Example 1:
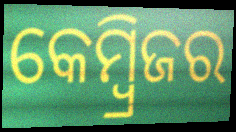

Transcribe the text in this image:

କେମ୍ବ୍ରିଜର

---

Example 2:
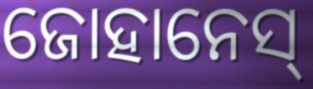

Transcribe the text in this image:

ଜୋହାନେସ୍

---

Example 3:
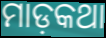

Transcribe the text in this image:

ମାଡ଼କଥା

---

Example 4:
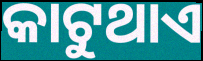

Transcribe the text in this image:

କାଟୁଥାଏ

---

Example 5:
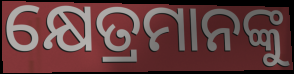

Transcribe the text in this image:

କ୍ଷେତ୍ରମାନଙ୍କୁ